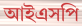
আইএসপি